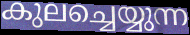
കുലച്ചെയ്യുന്ന